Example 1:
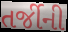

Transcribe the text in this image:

તર્જીની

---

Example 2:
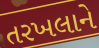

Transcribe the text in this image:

તરખલાને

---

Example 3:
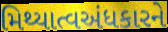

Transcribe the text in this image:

મિથ્યાત્વઅંધકારને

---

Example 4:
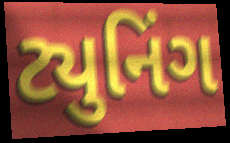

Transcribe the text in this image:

ટ્યુનિંગ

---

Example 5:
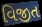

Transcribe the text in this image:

વિજીત